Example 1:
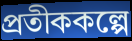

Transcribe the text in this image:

প্রতীককল্পে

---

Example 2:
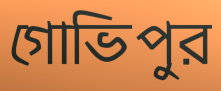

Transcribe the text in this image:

গোভিপুর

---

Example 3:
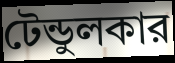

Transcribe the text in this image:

টেন্ডুলকার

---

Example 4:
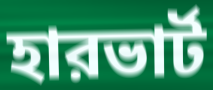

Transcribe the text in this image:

হারভার্ট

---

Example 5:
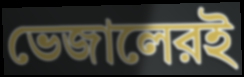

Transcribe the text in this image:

ভেজালেরই